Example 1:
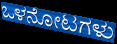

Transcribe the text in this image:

ಒಳನೋಟಗಳು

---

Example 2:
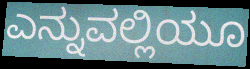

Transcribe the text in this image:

ಎನ್ನುವಲ್ಲಿಯೂ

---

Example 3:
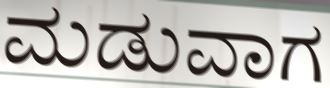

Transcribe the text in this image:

ಮಡುವಾಗ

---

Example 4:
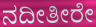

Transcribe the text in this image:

ನದೀತೀರೇ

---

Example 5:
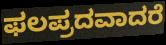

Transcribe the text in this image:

ಫಲಪ್ರದವಾದರೆ